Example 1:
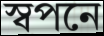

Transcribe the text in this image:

স্বপনে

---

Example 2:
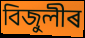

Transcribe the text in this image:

বিজুলীৰ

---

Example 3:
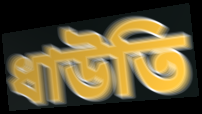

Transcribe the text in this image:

ধাউতি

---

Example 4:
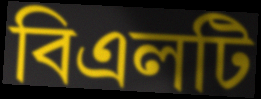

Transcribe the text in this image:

বিএলটি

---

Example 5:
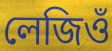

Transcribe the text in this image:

লেজিওঁ